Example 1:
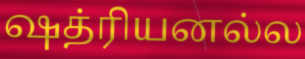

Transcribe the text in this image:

ஷத்ரியனல்ல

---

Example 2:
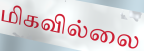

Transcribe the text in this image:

மிகவில்லை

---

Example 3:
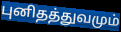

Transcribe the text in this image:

புனிதத்துவமும்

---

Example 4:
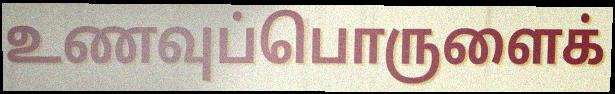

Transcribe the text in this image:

உணவுப்பொருளைக்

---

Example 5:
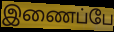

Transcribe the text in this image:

இணைப்பே